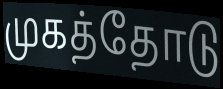
முகத்தோடு